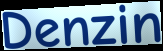
Denzin